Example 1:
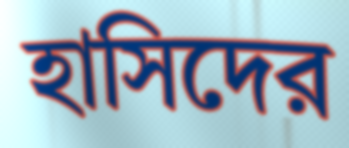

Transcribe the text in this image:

হাসিদের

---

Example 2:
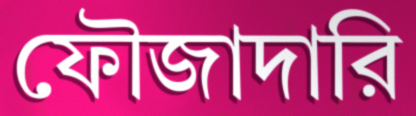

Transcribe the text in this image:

ফৌজাদারি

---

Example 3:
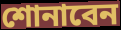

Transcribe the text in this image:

শোনাবেন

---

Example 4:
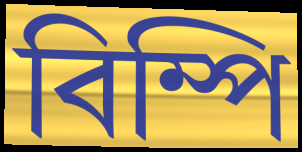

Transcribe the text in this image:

বিম্পি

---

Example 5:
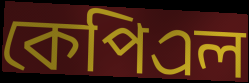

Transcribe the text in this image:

কেপিএল